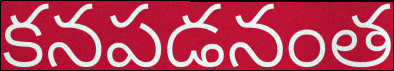
కనపడనంత